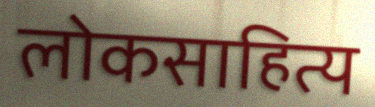
लोकसाहित्य